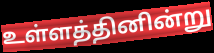
உள்ளத்தினின்று